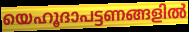
യെഹൂദാപട്ടണങ്ങളിൽ